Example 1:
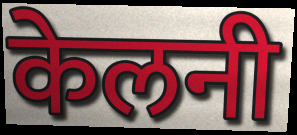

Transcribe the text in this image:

केलनी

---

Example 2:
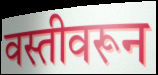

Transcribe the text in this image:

वस्तीवरून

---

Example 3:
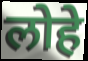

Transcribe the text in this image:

लोहे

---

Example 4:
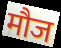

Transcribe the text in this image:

मौज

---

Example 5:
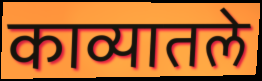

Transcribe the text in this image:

काव्यातले